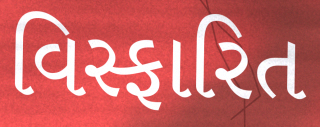
વિસ્ફારિત